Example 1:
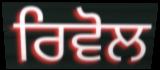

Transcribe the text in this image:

ਰਿਵੋਲ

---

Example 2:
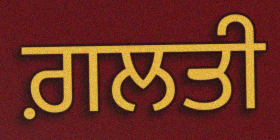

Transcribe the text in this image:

ਗ਼ਲਤੀ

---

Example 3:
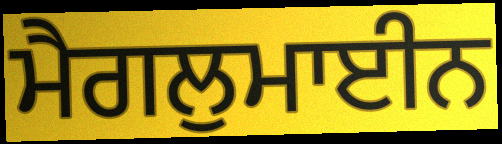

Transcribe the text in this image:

ਮੈਗਲੁਮਾਈਨ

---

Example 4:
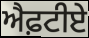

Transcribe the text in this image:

ਐਫ਼ਟੀਏ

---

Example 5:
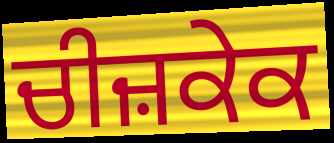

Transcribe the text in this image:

ਚੀਜ਼ਕੇਕ